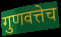
गुणवत्तेच